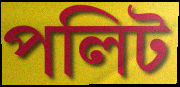
পলিট